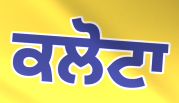
ਕਲੋਟਾ